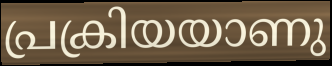
പ്രക്രിയയാണു